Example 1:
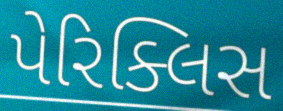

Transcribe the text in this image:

પેરિક્લિસ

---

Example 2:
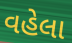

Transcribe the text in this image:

વહેલા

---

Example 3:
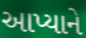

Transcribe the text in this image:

આપ્યાને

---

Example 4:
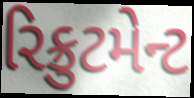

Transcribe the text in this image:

રિક્રુટમેન્ટ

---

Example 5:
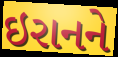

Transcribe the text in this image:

ઇરાનને